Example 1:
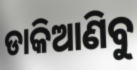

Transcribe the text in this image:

ଡାକିଆଣିବୁ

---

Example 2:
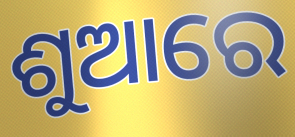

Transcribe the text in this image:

ଶୁଆରେ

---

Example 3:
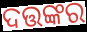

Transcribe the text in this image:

ଦତ୍ତଙ୍କର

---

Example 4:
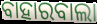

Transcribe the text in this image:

ବାହାରବାଲା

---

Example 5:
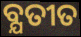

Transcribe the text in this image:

ବ୍ଯତୀତ